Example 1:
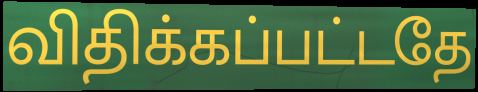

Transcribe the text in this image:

விதிக்கப்பட்டதே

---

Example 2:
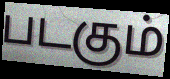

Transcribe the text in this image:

படகும்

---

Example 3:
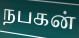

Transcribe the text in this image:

நபகன்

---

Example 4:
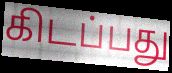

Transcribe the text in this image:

கிடப்பது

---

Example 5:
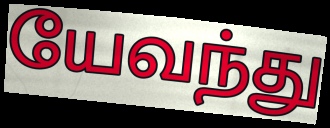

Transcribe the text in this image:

யேவந்து